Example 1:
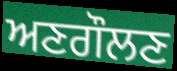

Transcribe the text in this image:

ਅਣਗੌਲਣ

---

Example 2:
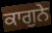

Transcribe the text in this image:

ਕਾਗੁਨੇ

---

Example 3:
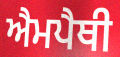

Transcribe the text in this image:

ਐਮਪੈਥੀ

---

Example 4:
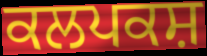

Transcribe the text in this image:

ਕਲਪਕਸ਼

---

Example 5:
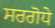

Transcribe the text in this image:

ਸਰਗੋਧੇ